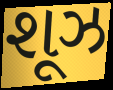
શૂઝ